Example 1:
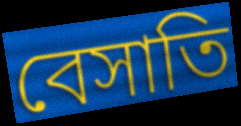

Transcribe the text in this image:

বেসাতি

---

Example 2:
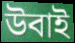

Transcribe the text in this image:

উবাই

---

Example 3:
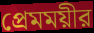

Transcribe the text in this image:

প্রেমময়ীর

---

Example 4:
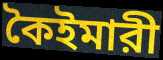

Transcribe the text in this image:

কৈইমারী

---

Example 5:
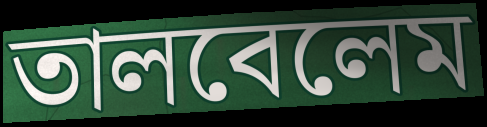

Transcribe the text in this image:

তালবেলেম